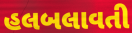
હલબલાવતી